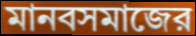
মানবসমাজের